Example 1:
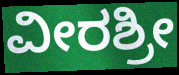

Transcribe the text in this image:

ವೀರಶ್ರೀ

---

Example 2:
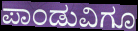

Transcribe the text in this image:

ಪಾಂಡುವಿಗೂ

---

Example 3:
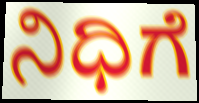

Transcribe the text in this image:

ನಿಧಿಗೆ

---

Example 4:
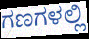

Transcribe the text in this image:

ಗಣಗಳಲ್ಲಿ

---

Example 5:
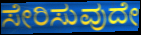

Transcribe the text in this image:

ಸೇರಿಸುವುದೇ